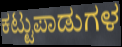
ಕಟ್ಟುಪಾಡುಗಳ